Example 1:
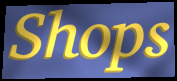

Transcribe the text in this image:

Shops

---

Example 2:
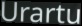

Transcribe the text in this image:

Urartu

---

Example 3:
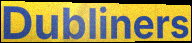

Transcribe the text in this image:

Dubliners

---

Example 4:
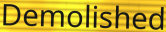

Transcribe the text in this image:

Demolished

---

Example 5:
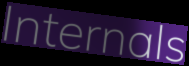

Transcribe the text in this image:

Internals